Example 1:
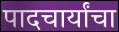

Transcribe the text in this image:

पादचार्यांचा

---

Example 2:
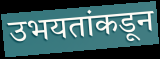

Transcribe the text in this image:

उभयतांकडून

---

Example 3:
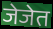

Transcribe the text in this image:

जेजेत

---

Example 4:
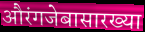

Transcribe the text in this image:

औरंगजेबासारख्या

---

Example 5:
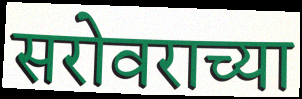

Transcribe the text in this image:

सरोवराच्या